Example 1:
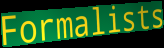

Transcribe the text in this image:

Formalists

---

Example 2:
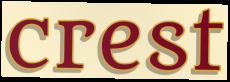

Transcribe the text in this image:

crest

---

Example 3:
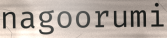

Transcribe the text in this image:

nagoorumi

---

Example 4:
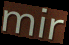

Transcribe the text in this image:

mir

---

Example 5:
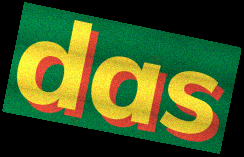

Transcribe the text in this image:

das